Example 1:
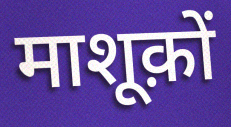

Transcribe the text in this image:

माशूक़ों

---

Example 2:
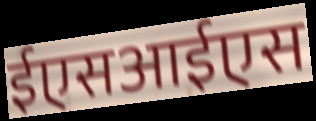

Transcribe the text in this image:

ईएसआईएस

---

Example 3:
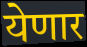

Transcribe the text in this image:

येणार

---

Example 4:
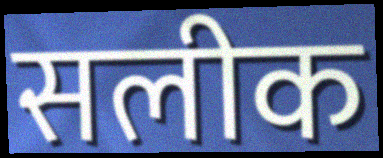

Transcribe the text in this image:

सलीक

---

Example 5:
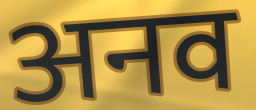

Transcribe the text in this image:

अनव